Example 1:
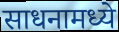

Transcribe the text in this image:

साधनामध्ये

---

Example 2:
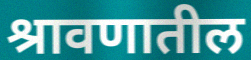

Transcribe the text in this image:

श्रावणातील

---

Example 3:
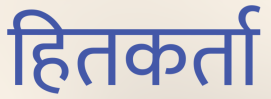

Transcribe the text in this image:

हितकर्ता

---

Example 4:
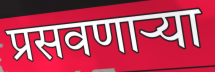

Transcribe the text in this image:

प्रसवणाऱ्या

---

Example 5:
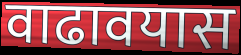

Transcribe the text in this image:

वाढावयास